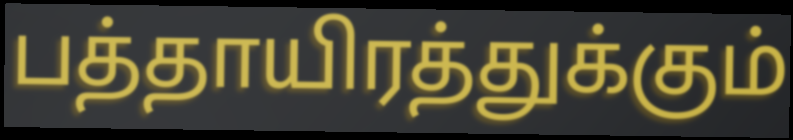
பத்தாயிரத்துக்கும்